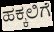
ಹಕ್ಕಲಿಗೆ